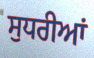
ਸੁਧਰੀਆਂ